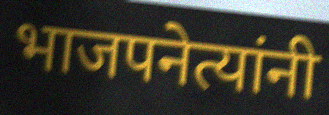
भाजपनेत्यांनी